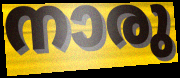
നാരു